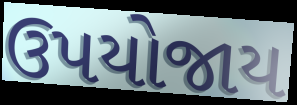
ઉપયોજાય